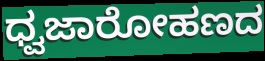
ಧ್ವಜಾರೋಹಣದ